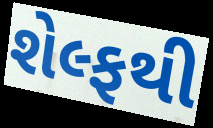
શેલ્ફથી